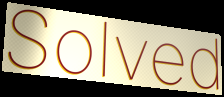
Solved